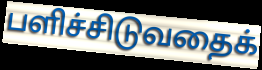
பளிச்சிடுவதைக்